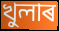
খুলাৰ